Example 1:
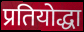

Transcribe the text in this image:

प्रतियोद्धा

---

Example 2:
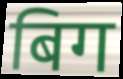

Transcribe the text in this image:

बिग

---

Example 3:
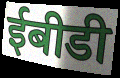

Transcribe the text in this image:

ईबीडी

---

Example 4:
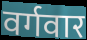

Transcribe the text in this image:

वर्गवार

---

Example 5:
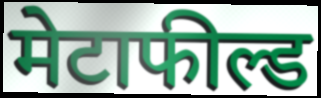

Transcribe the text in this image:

मेटाफील्ड